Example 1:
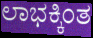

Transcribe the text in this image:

ಲಾಭಕ್ಕಿಂತ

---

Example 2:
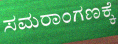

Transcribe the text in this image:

ಸಮರಾಂಗಣಕ್ಕೆ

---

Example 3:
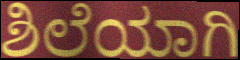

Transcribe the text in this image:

ಶಿಲೆಯಾಗಿ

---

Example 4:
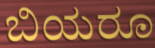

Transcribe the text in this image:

ಬಿಯರೂ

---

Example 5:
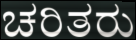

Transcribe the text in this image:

ಚರಿತರು